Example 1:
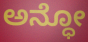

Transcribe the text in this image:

ಅನ್ಧೋ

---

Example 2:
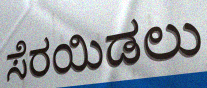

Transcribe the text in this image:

ಸೆರಯಿಡಲು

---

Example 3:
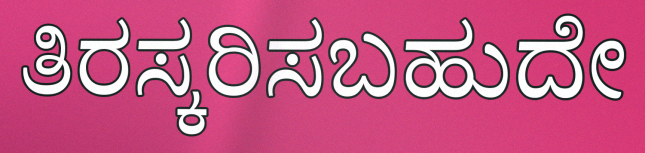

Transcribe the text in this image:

ತಿರಸ್ಕರಿಸಬಹುದೇ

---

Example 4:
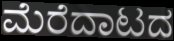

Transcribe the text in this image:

ಮೆರೆದಾಟದ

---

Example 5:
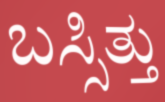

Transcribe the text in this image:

ಬಸ್ಸಿತ್ತು